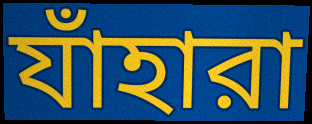
যাঁহারা